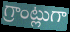
గ్రాంట్లుగా